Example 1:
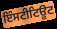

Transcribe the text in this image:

ਇੰਸਟੀਟਿਊਟ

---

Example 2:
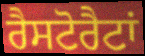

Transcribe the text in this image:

ਰੈਸਟੋਰੈਟਾਂ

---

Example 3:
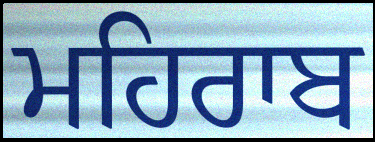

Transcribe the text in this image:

ਮਹਿਰਾਬ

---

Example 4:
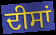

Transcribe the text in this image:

ਦੀਸਾਂ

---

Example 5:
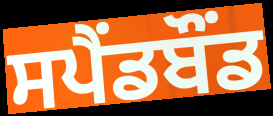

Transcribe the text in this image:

ਸਪੈਂਡਬੌਂਡ